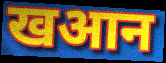
खआन